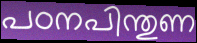
പഠനപിന്തുണ